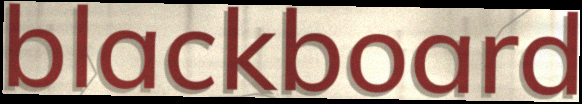
blackboard